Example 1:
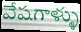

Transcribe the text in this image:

వేషగాళ్ళు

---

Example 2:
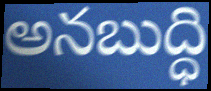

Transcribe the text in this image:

అనబుద్ధి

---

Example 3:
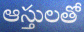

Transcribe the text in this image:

ఆస్తులతో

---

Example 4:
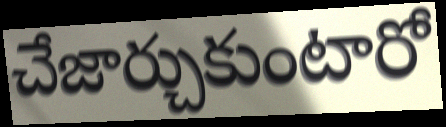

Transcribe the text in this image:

చేజార్చుకుంటారో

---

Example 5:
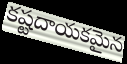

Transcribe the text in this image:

కష్టదాయకమైన